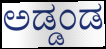
ಅಡ್ಡಂಡ